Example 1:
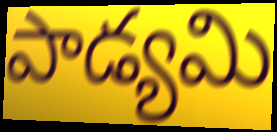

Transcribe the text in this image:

పాడ్యమి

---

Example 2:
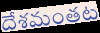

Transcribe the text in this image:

దేశమంతట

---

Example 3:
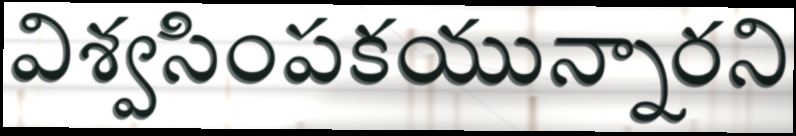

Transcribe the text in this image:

విశ్వసింపకయున్నారని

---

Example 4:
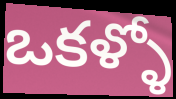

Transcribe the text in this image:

ఒకళ్ళో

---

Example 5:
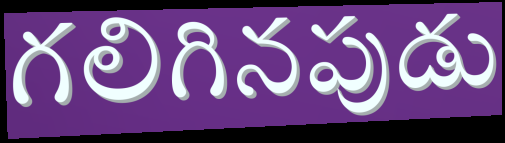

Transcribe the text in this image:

గలిగినపుడు